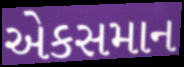
એકસમાન